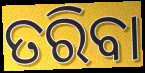
ତରିବା